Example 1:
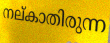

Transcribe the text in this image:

നല്കാതിരുന്ന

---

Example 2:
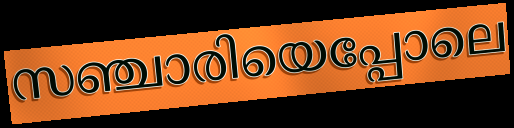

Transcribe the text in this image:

സഞ്ചാരിയെപ്പോലെ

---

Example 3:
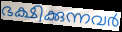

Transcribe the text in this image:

ഭക്ഷിക്കുന്നവർ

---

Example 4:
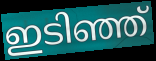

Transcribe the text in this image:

ഇടിഞ്ഞ്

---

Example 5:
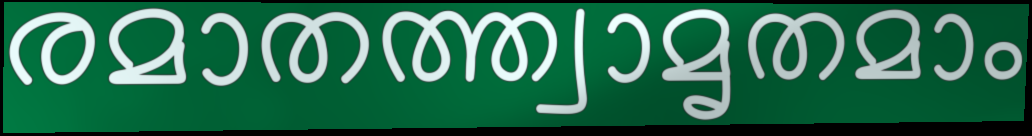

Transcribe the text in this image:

രമാതത്ത്വാമൃതമാം